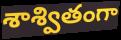
శాశ్వితంగా